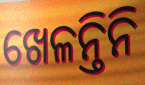
ଖେଳନ୍ତିନି